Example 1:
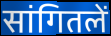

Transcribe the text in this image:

सांगितलें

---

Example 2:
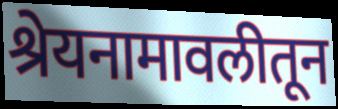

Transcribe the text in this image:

श्रेयनामावलीतून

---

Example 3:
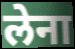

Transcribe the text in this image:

लेना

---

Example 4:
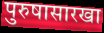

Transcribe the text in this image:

पुरुषासारखा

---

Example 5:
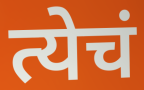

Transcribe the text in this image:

त्येचं